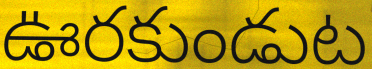
ఊరకుండుట